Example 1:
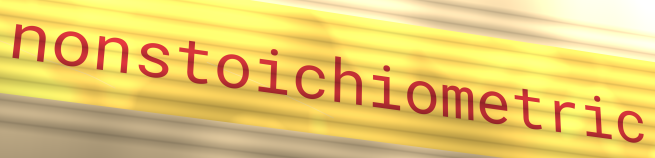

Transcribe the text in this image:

nonstoichiometric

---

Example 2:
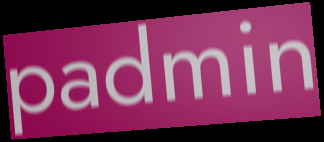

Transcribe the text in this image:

padmin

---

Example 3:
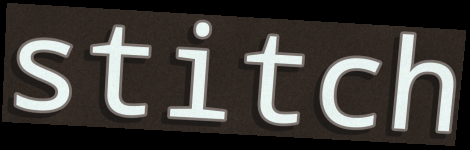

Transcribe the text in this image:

stitch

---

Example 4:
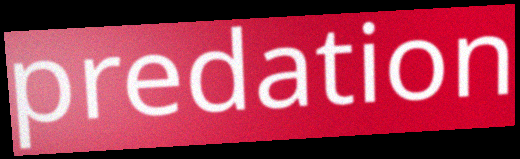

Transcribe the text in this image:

predation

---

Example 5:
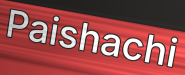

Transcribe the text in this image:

Paishachi